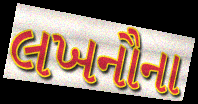
લખનૌના